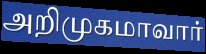
அறிமுகமாவார்